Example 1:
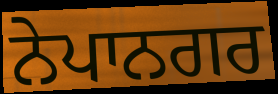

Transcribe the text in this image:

ਨੇਪਾਨਗਰ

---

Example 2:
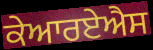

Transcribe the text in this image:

ਕੇਆਰਏਐਸ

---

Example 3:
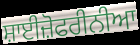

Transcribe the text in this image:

ਸ਼ਾਈਜ਼ੋਫਰੀਨੀਆ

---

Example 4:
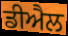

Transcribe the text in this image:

ਡੀਐਲ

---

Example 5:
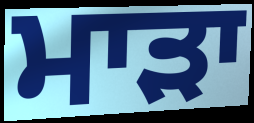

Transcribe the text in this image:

ਮਾਡ਼ਾ